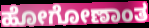
ಹೋಗೋಣಾಂತ